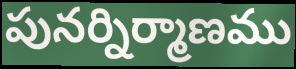
పునర్నిర్మాణము